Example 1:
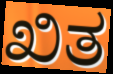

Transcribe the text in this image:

ಖಿತ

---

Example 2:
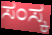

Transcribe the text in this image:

ಸಂಸ್ಕ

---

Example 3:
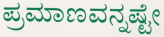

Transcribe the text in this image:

ಪ್ರಮಾಣವನ್ನಷ್ಟೇ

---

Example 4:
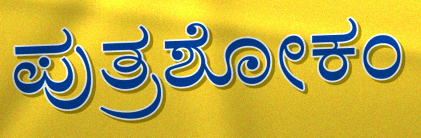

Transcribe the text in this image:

ಪುತ್ರಶೋಕಂ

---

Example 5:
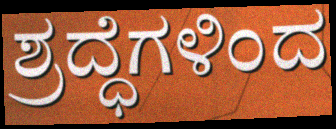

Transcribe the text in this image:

ಶ್ರದ್ಧೆಗಳಿಂದ